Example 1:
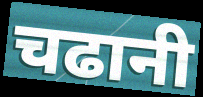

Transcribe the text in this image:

चढानी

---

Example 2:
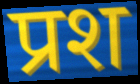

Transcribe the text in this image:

प्रश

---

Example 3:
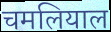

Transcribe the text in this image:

चमलियाल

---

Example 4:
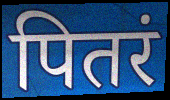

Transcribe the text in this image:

पितरं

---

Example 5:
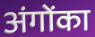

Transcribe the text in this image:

अंगोंका